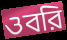
ওবরি